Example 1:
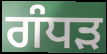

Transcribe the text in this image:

ਗੰਧੜ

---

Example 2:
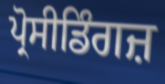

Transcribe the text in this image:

ਪ੍ਰੋਸੀਡਿੰਗਜ਼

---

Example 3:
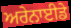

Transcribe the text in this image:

ਅਰੇਨਾਈਡੇ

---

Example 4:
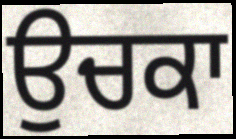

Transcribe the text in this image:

ਉਚਕਾ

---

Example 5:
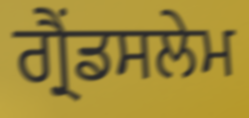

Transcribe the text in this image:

ਗ੍ਰੈਂਡਸਲੇਮ